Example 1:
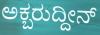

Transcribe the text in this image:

ಅಕ್ಬರುದ್ದೀನ್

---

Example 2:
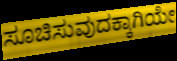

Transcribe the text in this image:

ಸೂಚಿಸುವುದಕ್ಕಾಗಿಯೇ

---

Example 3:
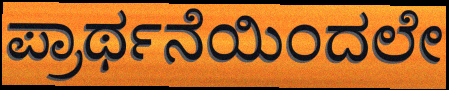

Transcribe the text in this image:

ಪ್ರಾರ್ಥನೆಯಿಂದಲೇ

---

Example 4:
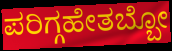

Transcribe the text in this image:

ಪರಿಗ್ಗಹೇತಬ್ಬೋ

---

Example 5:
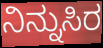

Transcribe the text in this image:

ನಿನ್ನುಸಿರ